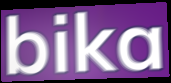
bika